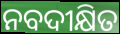
ନବଦୀକ୍ଷିତ